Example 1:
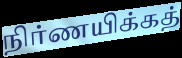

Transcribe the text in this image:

நிர்ணயிக்கத்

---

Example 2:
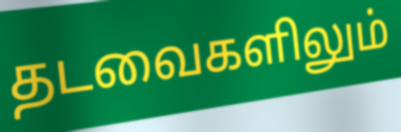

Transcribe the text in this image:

தடவைகளிலும்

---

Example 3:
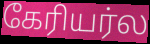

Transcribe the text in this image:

கேரியர்ல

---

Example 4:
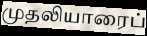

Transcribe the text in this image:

முதலியாரைப்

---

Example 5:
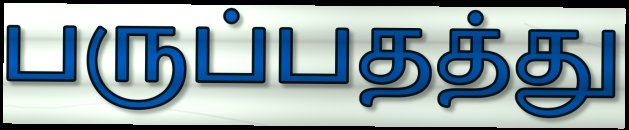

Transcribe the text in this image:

பருப்பதத்து